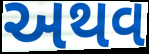
અથવ